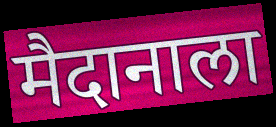
मैदानाला